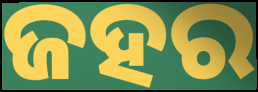
ଜହର